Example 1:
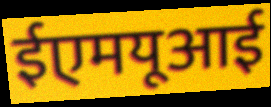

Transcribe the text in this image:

ईएमयूआई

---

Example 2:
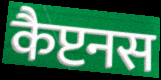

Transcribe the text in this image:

कैप्टनस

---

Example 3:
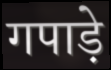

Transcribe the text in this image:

गपाड़े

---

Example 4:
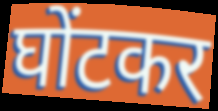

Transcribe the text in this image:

घोंटकर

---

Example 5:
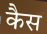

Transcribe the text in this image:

कैस